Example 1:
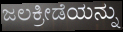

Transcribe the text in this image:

ಜಲಕ್ರೀಡೆಯನ್ನು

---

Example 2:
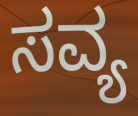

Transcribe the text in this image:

ಸವ್ಯ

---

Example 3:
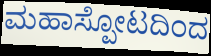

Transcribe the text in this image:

ಮಹಾಸ್ಪೋಟದಿಂದ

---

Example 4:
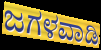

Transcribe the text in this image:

ಜಗಳವಾಡಿ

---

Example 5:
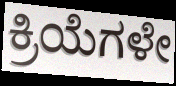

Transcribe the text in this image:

ಕ್ರಿಯೆಗಳೇ